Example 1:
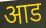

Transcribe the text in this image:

आड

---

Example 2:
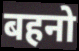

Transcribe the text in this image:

बहनो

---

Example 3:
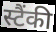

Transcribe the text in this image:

स्टैंकी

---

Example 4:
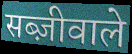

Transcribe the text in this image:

सब्ज़ीवाले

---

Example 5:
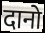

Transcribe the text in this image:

दानो